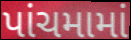
પાંચમામાં